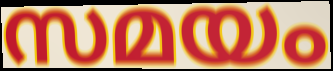
സമയം